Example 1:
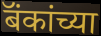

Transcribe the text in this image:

बॅंकांच्या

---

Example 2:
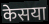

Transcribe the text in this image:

केसया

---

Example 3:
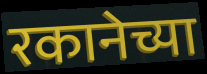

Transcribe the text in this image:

रकानेच्या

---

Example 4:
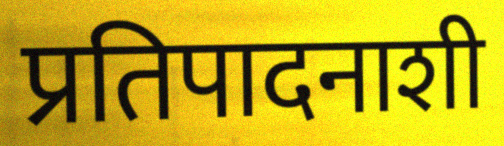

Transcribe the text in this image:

प्रतिपादनाशी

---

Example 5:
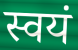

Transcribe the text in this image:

स्वयं